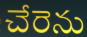
చేరెను